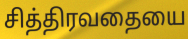
சித்திரவதையை